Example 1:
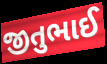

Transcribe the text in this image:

જીતુભાઈ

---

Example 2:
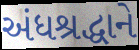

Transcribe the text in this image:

અંધશ્રદ્ધાને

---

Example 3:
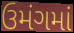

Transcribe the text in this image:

ઉમંગમાં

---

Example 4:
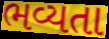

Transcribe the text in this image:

ભવ્યતા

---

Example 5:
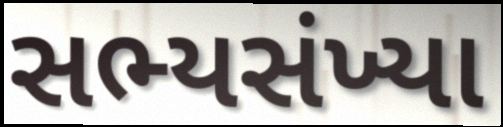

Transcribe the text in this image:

સભ્યસંખ્યા